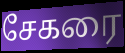
சேகரை